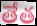
తేత